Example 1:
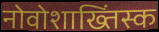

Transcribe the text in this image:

नोवोशाख्तिंस्क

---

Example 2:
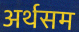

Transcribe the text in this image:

अर्थसम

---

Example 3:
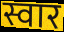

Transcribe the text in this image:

स्‍वार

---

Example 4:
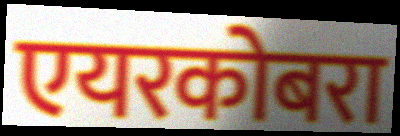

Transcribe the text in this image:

एयरकोबरा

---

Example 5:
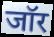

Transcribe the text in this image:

जॉर